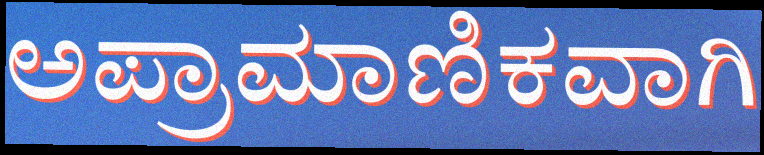
ಅಪ್ರಾಮಾಣಿಕವಾಗಿ